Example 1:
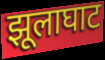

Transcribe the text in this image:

झूलाघाट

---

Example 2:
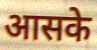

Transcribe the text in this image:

आसके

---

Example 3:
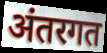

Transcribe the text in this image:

अंतरगत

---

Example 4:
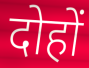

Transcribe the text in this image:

दोहों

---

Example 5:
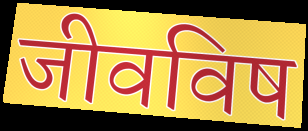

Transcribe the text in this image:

जीवविष